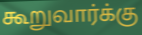
கூறுவார்க்கு